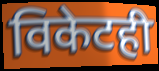
विकेटही